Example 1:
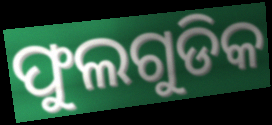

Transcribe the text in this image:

ଫୁଲଗୁଡିକ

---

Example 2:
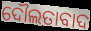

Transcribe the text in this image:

ଦୌଲତାବାଦ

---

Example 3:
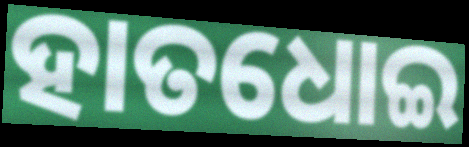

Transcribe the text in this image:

ହାତଧୋଇ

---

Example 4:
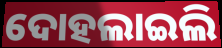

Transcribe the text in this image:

ଦୋହଲାଇଲି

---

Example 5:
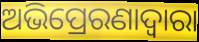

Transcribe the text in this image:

ଅଭିପ୍ରେରଣାଦ୍ୱାରା